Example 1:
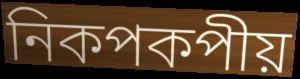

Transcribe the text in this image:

নিকপকপীয়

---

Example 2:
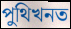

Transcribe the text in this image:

পুথিখনত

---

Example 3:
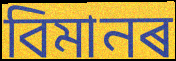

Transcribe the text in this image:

বিমানৰ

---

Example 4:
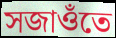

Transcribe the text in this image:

সজাওঁতে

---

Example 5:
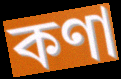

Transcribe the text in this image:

কণা